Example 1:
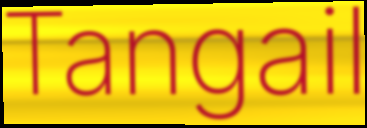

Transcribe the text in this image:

Tangail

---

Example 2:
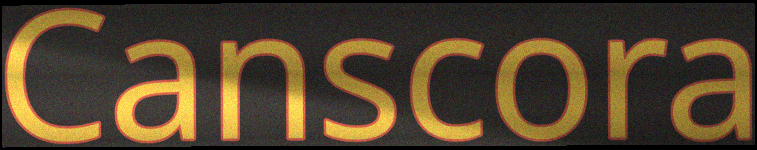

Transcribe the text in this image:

Canscora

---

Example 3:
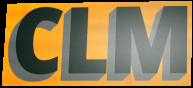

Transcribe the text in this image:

CLM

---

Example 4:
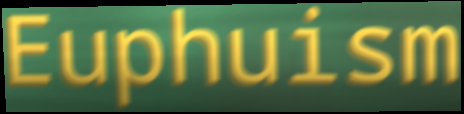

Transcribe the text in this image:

Euphuism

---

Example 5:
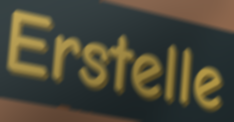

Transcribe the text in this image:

Erstelle